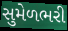
સુમેળભરી